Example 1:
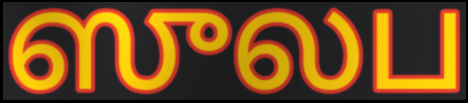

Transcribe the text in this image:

ஸுலப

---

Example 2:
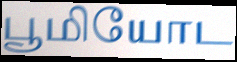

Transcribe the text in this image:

பூமியோட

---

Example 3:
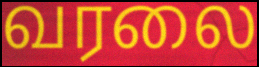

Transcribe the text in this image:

வரலை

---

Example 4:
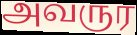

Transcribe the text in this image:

அவருர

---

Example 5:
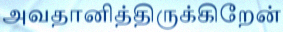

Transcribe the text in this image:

அவதானித்திருக்கிறேன்